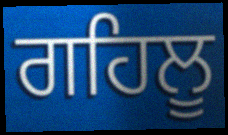
ਗਹਿਲੂ